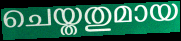
ചെയ്തതുമായ